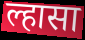
ल्हासा